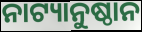
ନାଟ୍ୟାନୁଷ୍ଠାନ